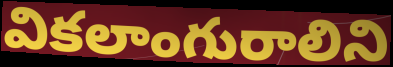
వికలాంగురాలిని